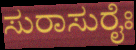
ಸುರಾಸುರೈಃ